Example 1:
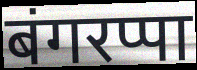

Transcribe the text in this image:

बंगरप्पा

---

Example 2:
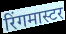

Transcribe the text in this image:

रिंगमास्टर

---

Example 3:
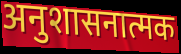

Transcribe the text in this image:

अनुशासनात्मक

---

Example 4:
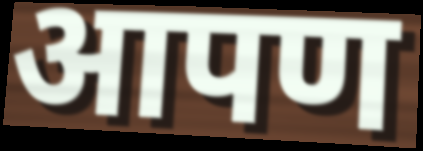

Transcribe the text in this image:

आपण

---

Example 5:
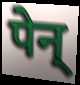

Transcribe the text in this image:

पेन्